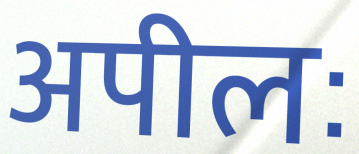
अपीलः